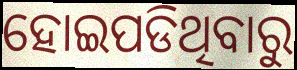
ହୋଇପଡିଥିବାରୁ